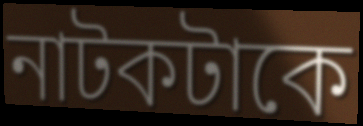
নাটকটাকে